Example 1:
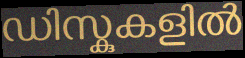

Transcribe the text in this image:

ഡിസ്കുകളിൽ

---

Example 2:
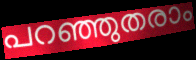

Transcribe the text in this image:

പറഞ്ഞുതരാം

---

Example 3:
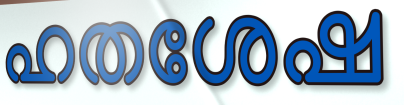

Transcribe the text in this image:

ഹതശേഷ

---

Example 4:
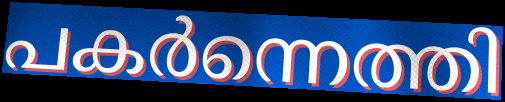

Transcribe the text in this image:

പകർന്നെത്തി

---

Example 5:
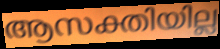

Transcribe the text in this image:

ആസക്തിയില്ല